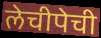
लेचीपेची